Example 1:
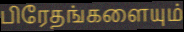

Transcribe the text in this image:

பிரேதங்களையும்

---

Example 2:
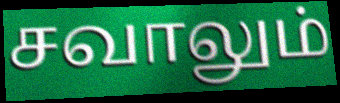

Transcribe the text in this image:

சவாலும்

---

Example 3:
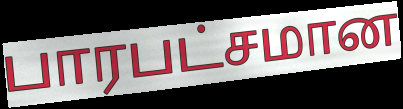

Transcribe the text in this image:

பாரபட்சமான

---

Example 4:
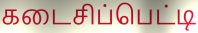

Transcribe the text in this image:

கடைசிப்பெட்டி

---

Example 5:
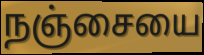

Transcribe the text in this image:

நஞ்சையை